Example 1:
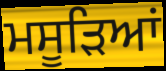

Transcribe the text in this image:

ਮਸੂੜਿਆਂ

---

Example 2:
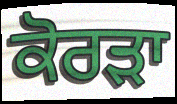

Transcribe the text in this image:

ਕੋਰੜਾ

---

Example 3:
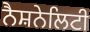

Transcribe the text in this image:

ਨੈਸ਼ਨੇਲਿਟੀ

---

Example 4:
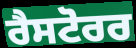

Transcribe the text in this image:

ਰੈਸਟੋਰਰ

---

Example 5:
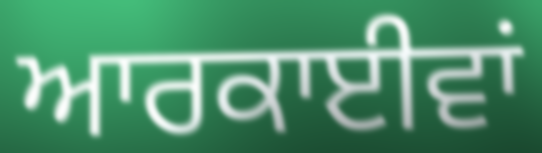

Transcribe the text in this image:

ਆਰਕਾਈਵਾਂ